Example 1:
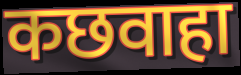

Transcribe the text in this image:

कछवाहा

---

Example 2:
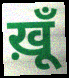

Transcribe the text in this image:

ख़ूँ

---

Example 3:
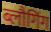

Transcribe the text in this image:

ब्लौगिंग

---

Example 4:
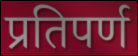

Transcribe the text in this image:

प्रतिपर्ण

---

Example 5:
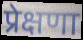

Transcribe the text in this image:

प्रेक्षणा